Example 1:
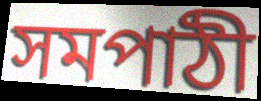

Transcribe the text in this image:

সমপাঠী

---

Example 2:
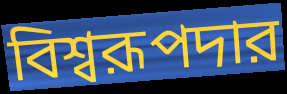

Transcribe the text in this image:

বিশ্বরূপদার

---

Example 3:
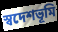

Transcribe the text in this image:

স্বদেশভূমি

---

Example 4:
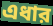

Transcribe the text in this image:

এধার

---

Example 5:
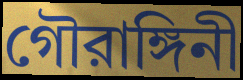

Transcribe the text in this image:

গৌরাঙ্গিনী